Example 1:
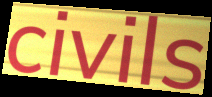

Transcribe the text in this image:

civils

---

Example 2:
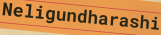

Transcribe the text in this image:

Neligundharashi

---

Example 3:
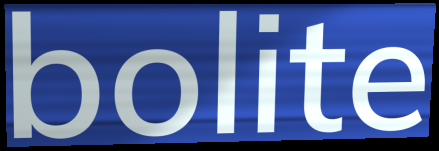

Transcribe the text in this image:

bolite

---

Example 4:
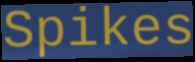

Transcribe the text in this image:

Spikes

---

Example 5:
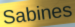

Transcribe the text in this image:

Sabines